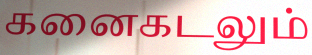
கனைகடலும்